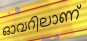
ഓവറിലാണ്